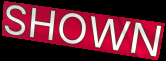
SHOWN